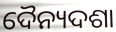
ଦୈନ୍ୟଦଶା